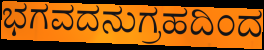
ಭಗವದನುಗ್ರಹದಿಂದ